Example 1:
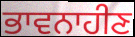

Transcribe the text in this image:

ਭਾਵਨਾਹੀਣ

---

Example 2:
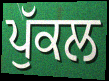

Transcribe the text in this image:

ਪੁੱਕਲ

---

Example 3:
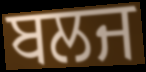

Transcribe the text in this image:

ਬਲਜ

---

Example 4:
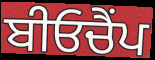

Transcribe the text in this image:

ਬੀਓਚੈਂਪ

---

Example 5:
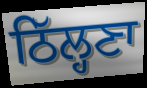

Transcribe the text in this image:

ਠਿੱਲ੍ਹਣਾ